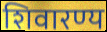
शिवारण्य